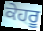
ਕੇਹਰੂ